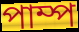
পাম্প